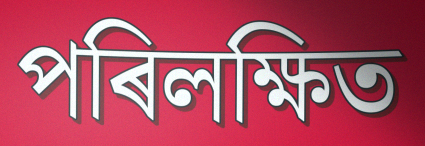
পৰিলক্ষিত